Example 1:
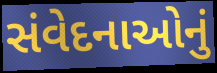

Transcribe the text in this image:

સંવેદનાઓનું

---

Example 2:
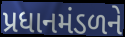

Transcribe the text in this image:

પ્રધાનમંડળને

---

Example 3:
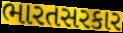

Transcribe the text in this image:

ભારતસરકાર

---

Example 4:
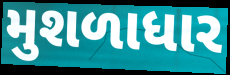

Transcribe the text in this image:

મુશળાધાર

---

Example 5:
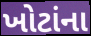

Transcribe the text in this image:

ખોટાંના